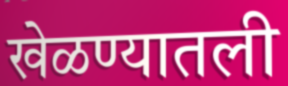
खेळण्यातली